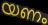
യണം